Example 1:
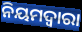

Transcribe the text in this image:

ନିୟମଦ୍ଵାରା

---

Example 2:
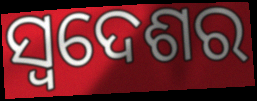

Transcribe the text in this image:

ସ୍ଵଦେଶର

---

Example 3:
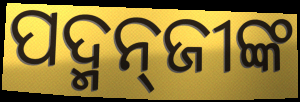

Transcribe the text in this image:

ପଦ୍ମନ୍‌ଜୀଙ୍କ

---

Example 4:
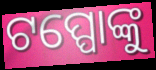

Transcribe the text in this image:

ଟପ୍ପୋଙ୍କୁ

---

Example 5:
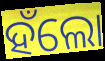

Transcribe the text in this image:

ହଁଲୋ